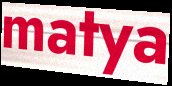
matya